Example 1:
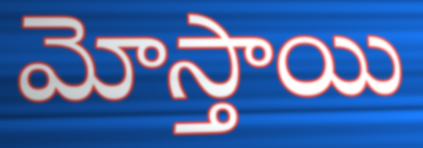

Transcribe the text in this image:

మోస్తాయి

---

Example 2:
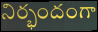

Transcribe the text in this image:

నిర్భందంగా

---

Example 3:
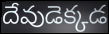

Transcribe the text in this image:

దేవుడెక్కడ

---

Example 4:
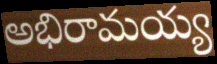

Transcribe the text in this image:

అభిరామయ్య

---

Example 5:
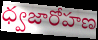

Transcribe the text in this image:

ధ్వజారోహణ